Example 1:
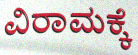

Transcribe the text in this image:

ವಿರಾಮಕ್ಕೆ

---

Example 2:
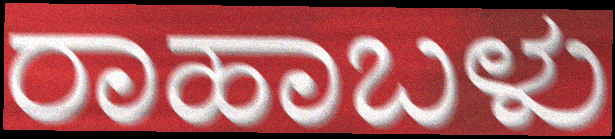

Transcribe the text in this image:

ರಾಹಾಬಳು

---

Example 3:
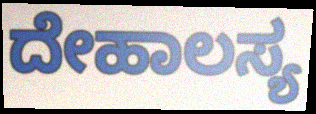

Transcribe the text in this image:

ದೇಹಾಲಸ್ಯ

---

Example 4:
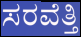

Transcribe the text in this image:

ಸರವೆತ್ತಿ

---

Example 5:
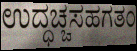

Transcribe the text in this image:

ಉದ್ಧಚ್ಚಸಹಗತಂ